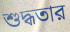
শুদ্ধতার